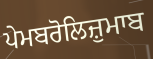
ਪੇਮਬਰੋਲਿਜ਼ੁਮਾਬ